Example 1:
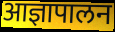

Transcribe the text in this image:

आज्ञापालन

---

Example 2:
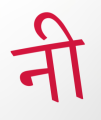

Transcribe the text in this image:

नी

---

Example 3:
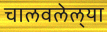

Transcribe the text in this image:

चालवलेल्या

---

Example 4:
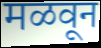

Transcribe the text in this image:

मळवून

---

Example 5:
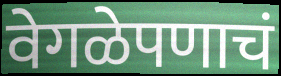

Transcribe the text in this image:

वेगळेपणाचं